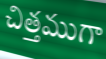
చిత్తముగా